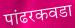
पांढरकवडा